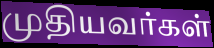
முதியவர்கள்